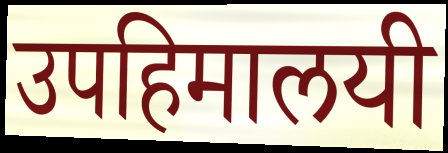
उपहिमालयी